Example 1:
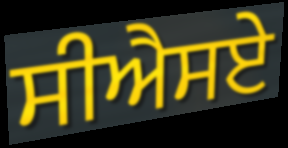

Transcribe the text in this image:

ਸੀਐਸਏ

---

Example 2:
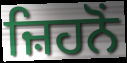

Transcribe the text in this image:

ਜ਼ਿਹਨੋਂ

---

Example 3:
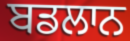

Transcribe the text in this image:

ਬਡਲਾਨ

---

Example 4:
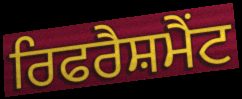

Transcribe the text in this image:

ਰਿਫਰੈਸ਼ਮੈਂਟ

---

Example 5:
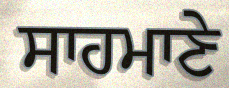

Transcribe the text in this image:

ਸਾਹਮਾਣੇ